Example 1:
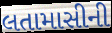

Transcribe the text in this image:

લતામાસીની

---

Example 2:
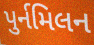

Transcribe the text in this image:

પુર્નમિલન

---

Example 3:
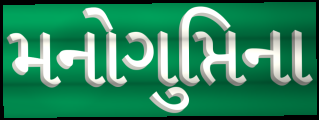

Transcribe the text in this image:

મનોગુપ્તિના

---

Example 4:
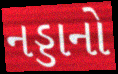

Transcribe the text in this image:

નડ્ડાનો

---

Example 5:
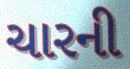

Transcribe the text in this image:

ચારની